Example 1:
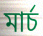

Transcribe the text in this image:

মাৰ্চ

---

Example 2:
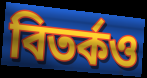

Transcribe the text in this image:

বিতৰ্কও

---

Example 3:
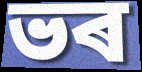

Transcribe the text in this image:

ভৰ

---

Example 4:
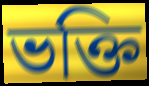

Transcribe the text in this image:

ভক্তি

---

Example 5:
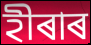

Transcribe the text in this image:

হীৰাৰ